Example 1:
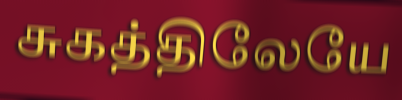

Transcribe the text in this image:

சுகத்திலேயே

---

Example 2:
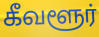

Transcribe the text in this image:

கீவளூர்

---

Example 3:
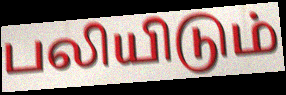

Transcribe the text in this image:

பலியிடும்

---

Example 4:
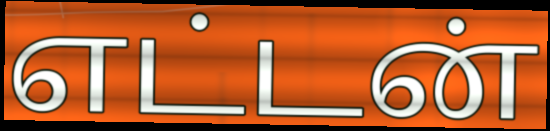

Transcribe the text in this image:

எட்டன்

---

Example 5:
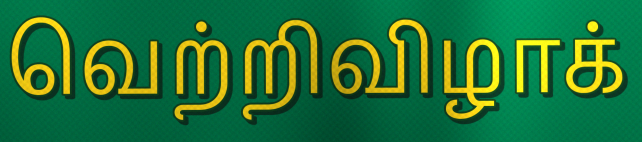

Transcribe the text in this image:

வெற்றிவிழாக்